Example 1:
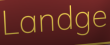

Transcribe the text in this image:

Landge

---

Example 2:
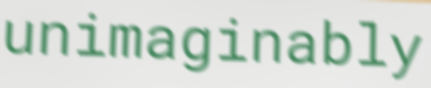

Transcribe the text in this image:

unimaginably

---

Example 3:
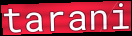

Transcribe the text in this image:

tarani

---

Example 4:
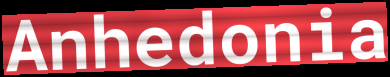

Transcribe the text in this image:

Anhedonia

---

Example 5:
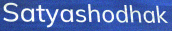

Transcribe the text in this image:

Satyashodhak